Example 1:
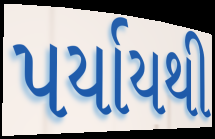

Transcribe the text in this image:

પર્યાયથી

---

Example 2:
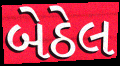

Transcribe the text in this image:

બેઠેલ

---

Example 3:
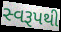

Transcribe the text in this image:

સ્વરૂપથી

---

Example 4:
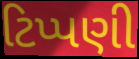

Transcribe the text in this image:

ટિપ્પણી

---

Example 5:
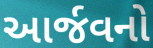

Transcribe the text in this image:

આર્જવનો